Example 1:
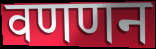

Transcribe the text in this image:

वणणन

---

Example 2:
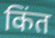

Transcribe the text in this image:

किंत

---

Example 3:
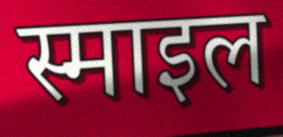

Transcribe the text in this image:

स्माइल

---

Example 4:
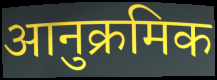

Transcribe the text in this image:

आनुक्रमिक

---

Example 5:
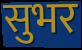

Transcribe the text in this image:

सुभर